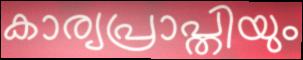
കാര്യപ്രാപ്തിയും